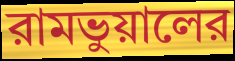
রামভুয়ালের